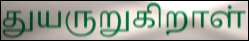
துயருறுகிறாள்